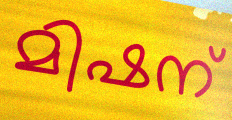
മിഷന്